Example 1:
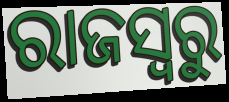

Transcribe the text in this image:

ରାଜସ୍ବରୁ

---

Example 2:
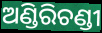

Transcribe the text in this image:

ଅଣ୍ଡିରିଚଣ୍ଡୀ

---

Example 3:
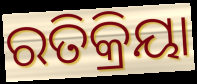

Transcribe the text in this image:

ରତିକ୍ରିୟା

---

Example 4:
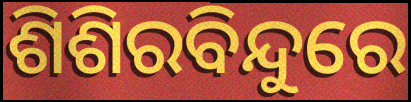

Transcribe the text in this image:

ଶିଶିରବିନ୍ଦୁରେ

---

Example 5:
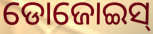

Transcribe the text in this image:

ଡୋଜୋଇସ୍